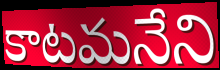
కాటమనేని